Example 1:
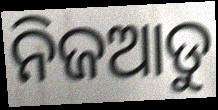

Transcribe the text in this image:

ନିଜଆଡୁ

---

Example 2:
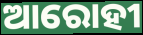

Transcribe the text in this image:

ଆରୋହୀ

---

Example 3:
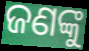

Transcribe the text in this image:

ଜଣଙ୍କୁ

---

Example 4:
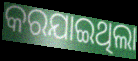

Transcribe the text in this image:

କରଯାଇଥିଲା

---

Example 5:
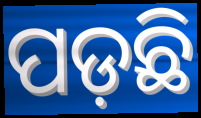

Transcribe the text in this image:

ପଡ଼ଛି